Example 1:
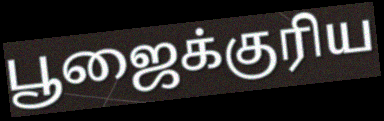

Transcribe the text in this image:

பூஜைக்குரிய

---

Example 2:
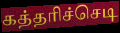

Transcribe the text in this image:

கத்தரிச்செடி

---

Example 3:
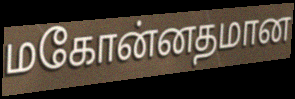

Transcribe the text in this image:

மகோன்னதமான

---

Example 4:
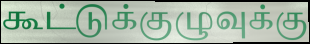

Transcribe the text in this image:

கூட்டுக்குழுவுக்கு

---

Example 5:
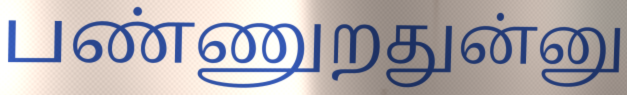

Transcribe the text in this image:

பண்ணுறதுன்னு